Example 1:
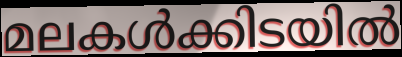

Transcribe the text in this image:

മലകൾക്കിടയിൽ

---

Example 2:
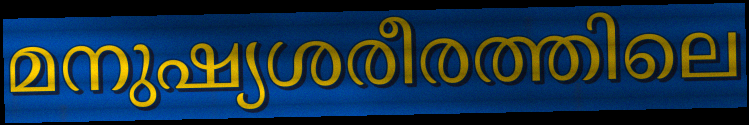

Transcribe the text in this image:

മനുഷ്യശരീരത്തിലെ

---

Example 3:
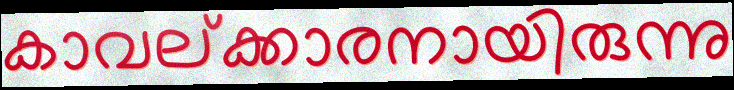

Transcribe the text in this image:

കാവല്ക്കാരനായിരുന്നു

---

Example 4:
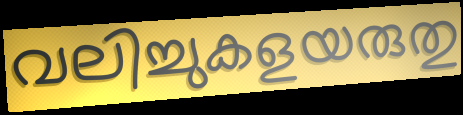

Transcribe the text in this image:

വലിച്ചുകളയരുതു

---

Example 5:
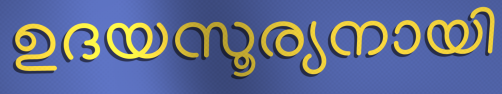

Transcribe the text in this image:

ഉദയസൂര്യനായി